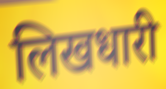
लिखधारी